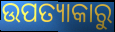
ଉପତ୍ୟାକାରୁ